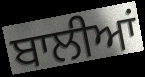
ਬਾਲੀਆਂ